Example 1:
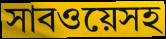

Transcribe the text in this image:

সাবওয়েসহ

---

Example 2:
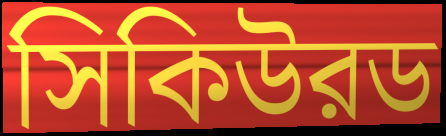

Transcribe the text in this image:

সিকিউরড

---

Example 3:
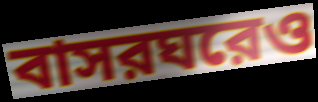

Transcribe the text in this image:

বাসরঘরেও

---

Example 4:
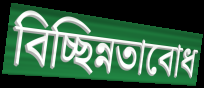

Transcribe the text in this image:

বিচ্ছিন্নতাবোধ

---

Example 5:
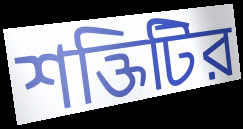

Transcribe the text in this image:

শক্তিটির